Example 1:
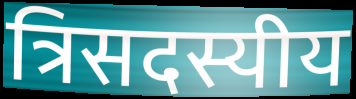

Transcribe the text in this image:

त्रिसदस्यीय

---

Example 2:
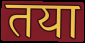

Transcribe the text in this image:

तया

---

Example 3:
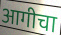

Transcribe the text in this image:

आगीचा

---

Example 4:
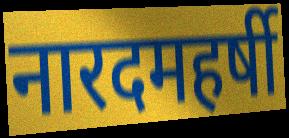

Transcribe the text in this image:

नारदमहर्षी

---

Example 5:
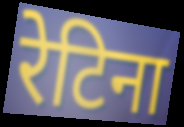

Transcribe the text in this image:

रेटिना